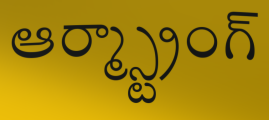
ఆర్మ్స్ట్రాంగ్